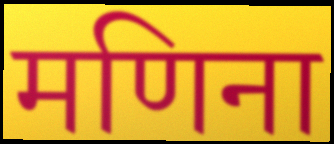
मणिना